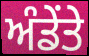
ਅੰਡੇਂਤੇ